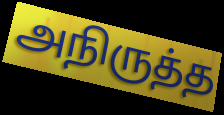
அநிருத்த